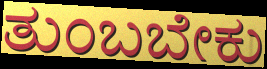
ತುಂಬಬೇಕು